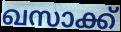
ഖസാക്ക്